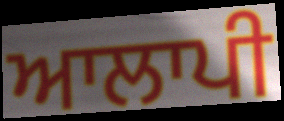
ਆਲਾਪੀ